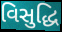
વિસુદ્ધિ